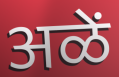
अळें